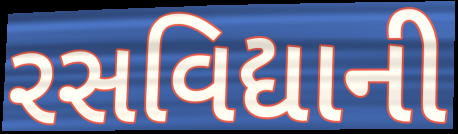
રસવિદ્યાની